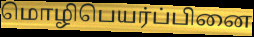
மொழிபெயர்ப்பினை